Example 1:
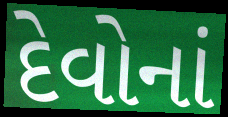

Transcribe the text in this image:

દેવોનાં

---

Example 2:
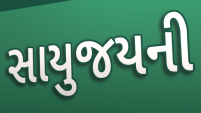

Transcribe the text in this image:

સાયુજયની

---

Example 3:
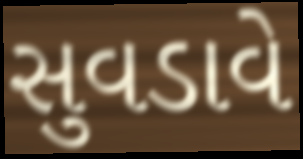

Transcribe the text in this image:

સુવડાવે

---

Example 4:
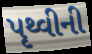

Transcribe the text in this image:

પૃથ્વીની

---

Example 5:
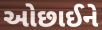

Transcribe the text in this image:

ઓછાઈને